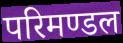
परिमण्डल